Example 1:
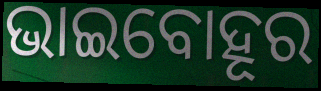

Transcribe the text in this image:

ଭାଇବୋହୂର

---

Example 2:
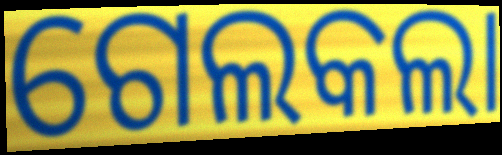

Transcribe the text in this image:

ଗେଲକଲା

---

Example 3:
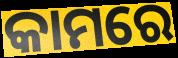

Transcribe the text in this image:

କାମରେ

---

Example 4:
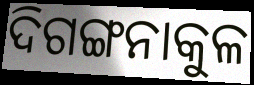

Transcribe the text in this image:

ଦିଗଙ୍ଗନାକୁଳ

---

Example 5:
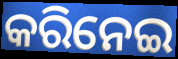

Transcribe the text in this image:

କରିନେଇ